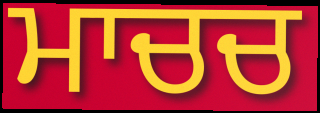
ਮਾਚਚ